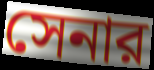
সেনার